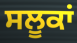
ਸਲੂਕਾਂ